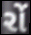
રોં